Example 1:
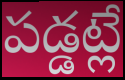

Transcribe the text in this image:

పడ్డట్లే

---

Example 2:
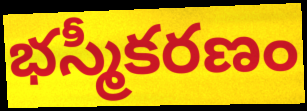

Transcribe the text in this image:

భస్మీకరణం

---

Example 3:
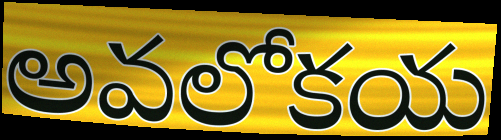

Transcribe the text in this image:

అవలోకయ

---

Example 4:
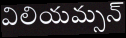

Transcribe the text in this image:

విలియమ్సన్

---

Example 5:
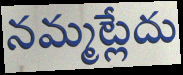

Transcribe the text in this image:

నమ్మట్లేదు